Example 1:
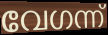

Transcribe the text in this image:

വേഗന്ന്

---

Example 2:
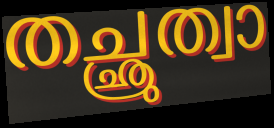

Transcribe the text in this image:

തച്ഛ്രുത്വാ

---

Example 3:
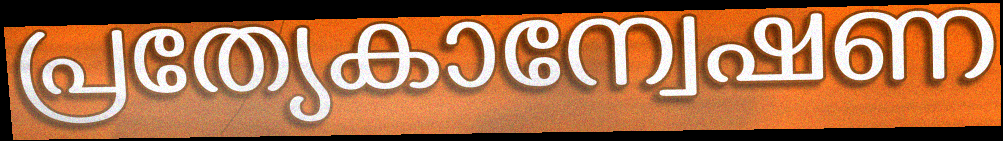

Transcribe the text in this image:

പ്രത്യേകാന്വേഷണ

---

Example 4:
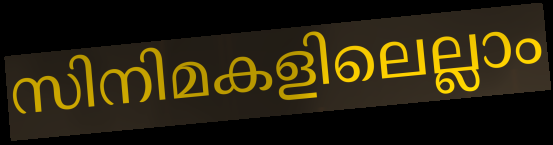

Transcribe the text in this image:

സിനിമകളിലെല്ലാം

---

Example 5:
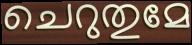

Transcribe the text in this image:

ചെറുതുമേ